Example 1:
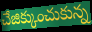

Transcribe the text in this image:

చేజిక్కుంచుకున్న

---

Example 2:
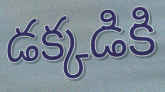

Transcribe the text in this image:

డక్కడికి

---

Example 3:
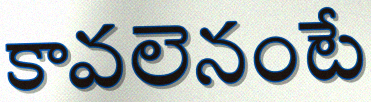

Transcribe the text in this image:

కావలెనంటే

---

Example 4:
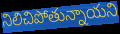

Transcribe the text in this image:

నిలిచిపోతున్నాయని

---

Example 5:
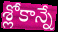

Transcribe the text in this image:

శ్లోకాన్నే